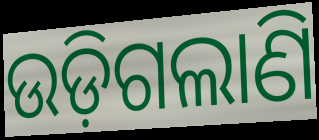
ଉଡ଼ିଗଲାଣି